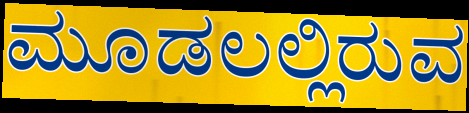
ಮೂಡಲಲ್ಲಿರುವ